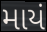
માયં